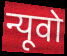
न्यूवो